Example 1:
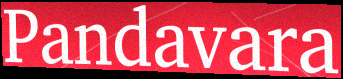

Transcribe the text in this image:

Pandavara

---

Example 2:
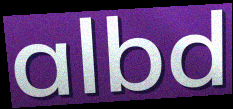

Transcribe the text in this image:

albd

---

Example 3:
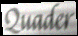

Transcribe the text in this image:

Quader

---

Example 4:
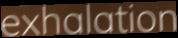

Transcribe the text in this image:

exhalation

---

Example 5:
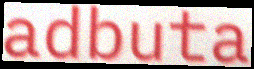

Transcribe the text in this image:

adbuta